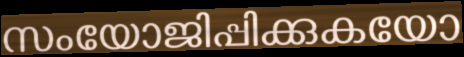
സംയോജിപ്പിക്കുകയോ